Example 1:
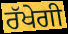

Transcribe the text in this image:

ਰੱਖੇਗੀ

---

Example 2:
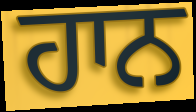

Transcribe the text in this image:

ਹਾਨ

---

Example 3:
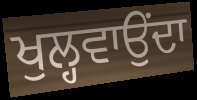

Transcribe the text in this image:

ਖੁਲ੍ਹਵਾਉਂਦਾ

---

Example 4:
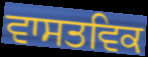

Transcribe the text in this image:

ਵਾਸਤਵਿਕ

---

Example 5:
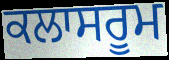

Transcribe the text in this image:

ਕਲਾਸਰੂਮ